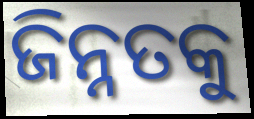
ଜିନ୍ନତକୁ